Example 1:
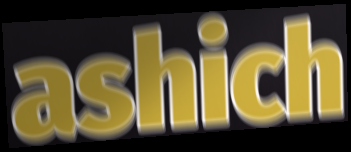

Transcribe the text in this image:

ashich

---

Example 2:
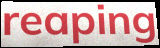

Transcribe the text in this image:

reaping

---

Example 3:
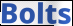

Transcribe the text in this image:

Bolts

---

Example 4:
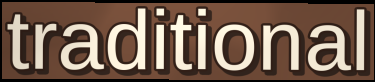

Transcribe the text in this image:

traditional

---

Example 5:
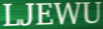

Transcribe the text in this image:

LJEWU